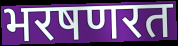
भरषणरत